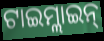
ଟାଇମ୍ଲାଇନ୍